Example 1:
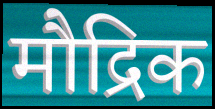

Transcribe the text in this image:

मौद्रिक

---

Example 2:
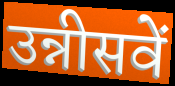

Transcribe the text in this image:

उन्नीसवें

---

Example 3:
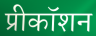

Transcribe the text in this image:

प्रीकॉशन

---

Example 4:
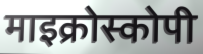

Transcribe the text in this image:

माइक्रोस्कोपी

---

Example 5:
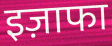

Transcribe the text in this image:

इज़ाफा